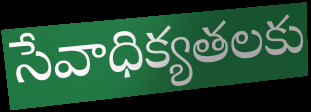
సేవాధిక్యతలకు